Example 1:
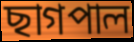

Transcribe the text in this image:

ছাগপাল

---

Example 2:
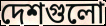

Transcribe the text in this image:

দেশগুলো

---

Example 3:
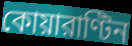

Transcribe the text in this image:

কোয়ারাণ্টিন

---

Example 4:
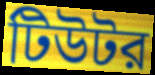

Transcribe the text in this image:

টিউটর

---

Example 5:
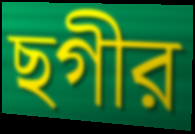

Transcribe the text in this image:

ছগীর